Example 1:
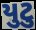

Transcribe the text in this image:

યુટુ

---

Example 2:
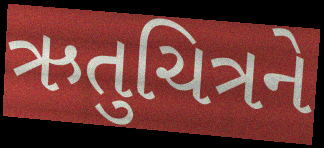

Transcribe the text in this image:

ઋતુચિત્રને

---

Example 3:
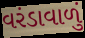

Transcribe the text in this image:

વરંડાવાળું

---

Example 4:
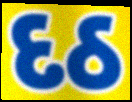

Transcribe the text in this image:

દઠ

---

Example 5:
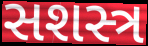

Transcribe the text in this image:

સશસ્ત્ર